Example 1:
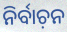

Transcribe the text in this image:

ନିର୍ବାଚ଼ନ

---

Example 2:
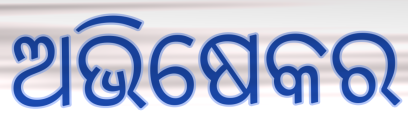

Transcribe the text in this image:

ଅଭିଷେକର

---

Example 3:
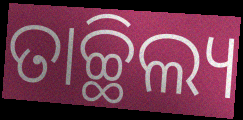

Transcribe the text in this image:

ତାଚ୍ଛିଲ୍ୟ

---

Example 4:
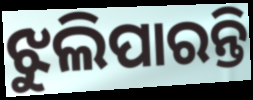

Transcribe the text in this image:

ଝୁଲିପାରନ୍ତି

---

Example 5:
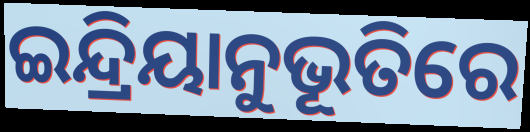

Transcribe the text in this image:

ଇନ୍ଦ୍ରିୟାନୁଭୂତିରେ